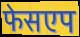
फेसएप